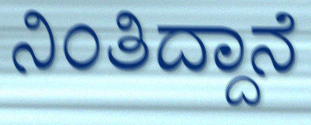
ನಿಂತಿದ್ದಾನೆ